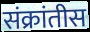
संक्रांतीस